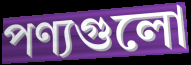
পণ্যগুলো